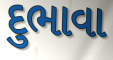
દુભાવા